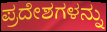
ಪ್ರದೇಶಗಳನ್ನು